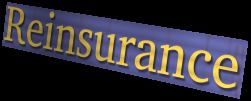
Reinsurance